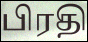
பிரதி